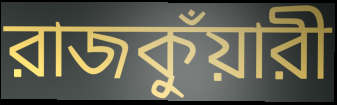
রাজকুঁয়ারী